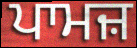
ਪਾਮਜ਼